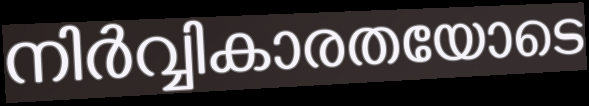
നിർവ്വികാരതയോടെ